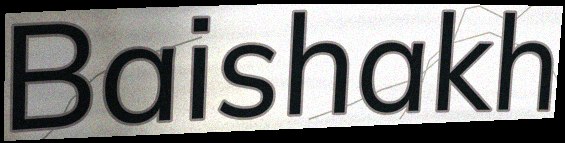
Baishakh